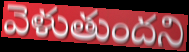
వెళుతుందని